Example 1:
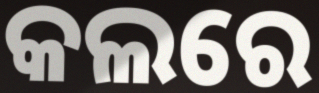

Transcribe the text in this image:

କଲରେ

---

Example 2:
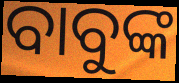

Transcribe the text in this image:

ବାବୁଙ୍କ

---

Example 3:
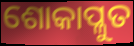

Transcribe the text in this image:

ଶୋକାପ୍ଳୁତ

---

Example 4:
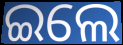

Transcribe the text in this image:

ଇଲେ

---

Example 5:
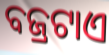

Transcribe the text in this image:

ବଜ୍ରଟାଏ